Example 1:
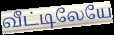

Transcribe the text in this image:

வீட்டிலேயே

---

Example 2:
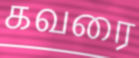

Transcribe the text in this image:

கவரை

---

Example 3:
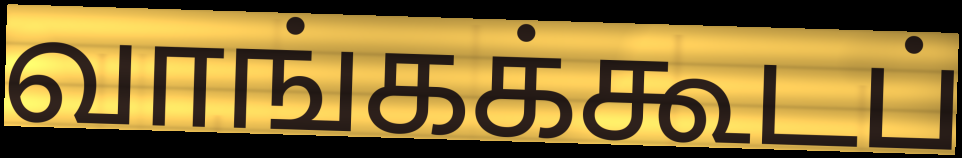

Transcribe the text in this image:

வாங்கக்கூடப்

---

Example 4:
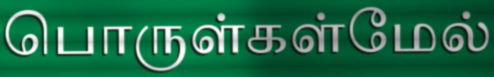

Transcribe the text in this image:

பொருள்கள்மேல்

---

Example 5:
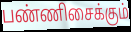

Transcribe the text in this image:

பண்ணிசைக்கும்